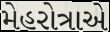
મેહરોત્રાએ